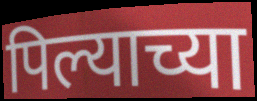
पिल्याच्या